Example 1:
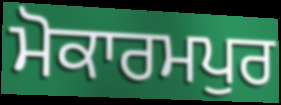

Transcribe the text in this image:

ਮੋਕਾਰਮਪੁਰ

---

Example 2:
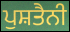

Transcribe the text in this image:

ਪੁਸ਼ਤੈਨੀ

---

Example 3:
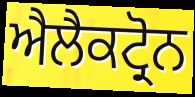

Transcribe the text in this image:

ਐਲੈਕਟ੍ਰੋਨ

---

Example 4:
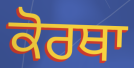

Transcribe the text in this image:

ਕੋਰਥਾ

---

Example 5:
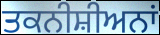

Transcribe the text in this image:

ਤਕਨੀਸ਼ੀਅਨਾਂ